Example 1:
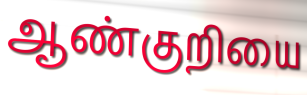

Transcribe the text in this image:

ஆண்குறியை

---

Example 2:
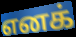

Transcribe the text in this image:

எனக்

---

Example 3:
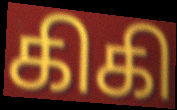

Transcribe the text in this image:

கிகி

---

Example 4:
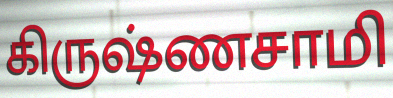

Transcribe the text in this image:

கிருஷ்ணசாமி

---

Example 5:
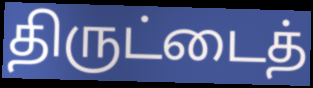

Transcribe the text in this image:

திருட்டைத்